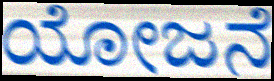
ಯೋಜನೆ